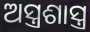
ଅସ୍ତ୍ରଶାସ୍ତ୍ର